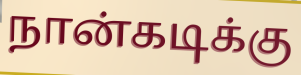
நான்கடிக்கு